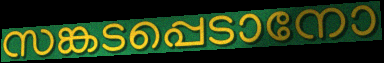
സങ്കടപ്പെടാനോ